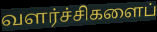
வளர்ச்சிகளைப்